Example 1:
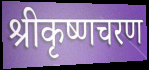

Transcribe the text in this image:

श्रीकृष्णचरण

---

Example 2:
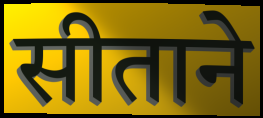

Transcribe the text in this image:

सीताने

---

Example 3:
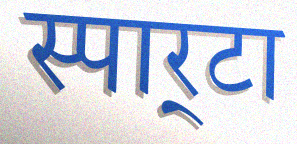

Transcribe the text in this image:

स्पार्टा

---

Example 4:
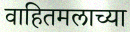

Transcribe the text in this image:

वाहितमलाच्या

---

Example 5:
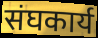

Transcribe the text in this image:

संघकार्य